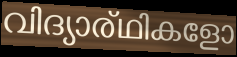
വിദ്യാര്ഥികളോ